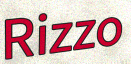
Rizzo